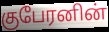
குபேரனின்